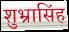
शुभ्रासिंह